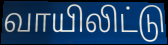
வாயிலிட்டு